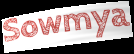
Sowmya